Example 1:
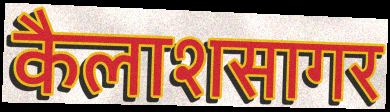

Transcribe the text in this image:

कैलाशसागर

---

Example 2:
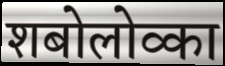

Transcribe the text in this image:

शबोलोव्का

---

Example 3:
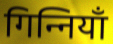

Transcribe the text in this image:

गिन्नियाँ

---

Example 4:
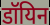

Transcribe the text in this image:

डॉयिन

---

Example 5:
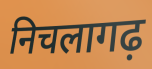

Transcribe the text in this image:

निचलागढ़